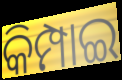
କିମ୍ପାଇ